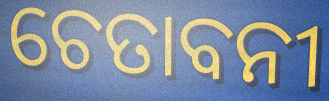
ଚେତାବନୀ